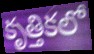
కృత్తికలో